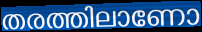
തരത്തിലാണോ